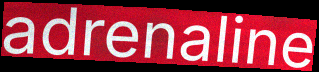
adrenaline